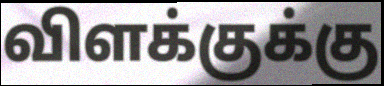
விளக்குக்கு